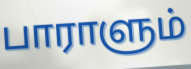
பாராளும்